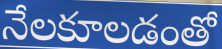
నేలకూలడంతో